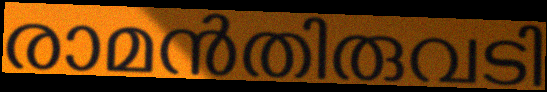
രാമൻതിരുവടി